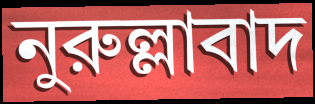
নুরুল্লাবাদ